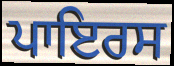
ਪਾਇਰਸ